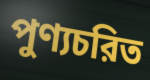
পুণ্যচরিত